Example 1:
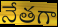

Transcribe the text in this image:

నేతగా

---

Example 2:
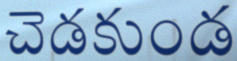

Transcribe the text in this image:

చెడకుండ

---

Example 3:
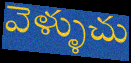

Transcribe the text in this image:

వెళ్ళుచు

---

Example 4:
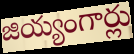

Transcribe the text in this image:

జియ్యంగార్లు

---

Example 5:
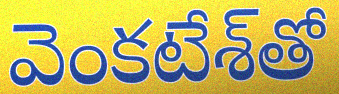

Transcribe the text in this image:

వెంకటేశ్‌తో